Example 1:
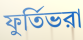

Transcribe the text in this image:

ফুর্তিভরা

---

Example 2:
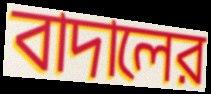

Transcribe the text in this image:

বাদালের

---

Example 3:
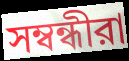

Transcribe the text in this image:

সম্বন্ধীরা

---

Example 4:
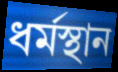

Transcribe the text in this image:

ধর্মস্থান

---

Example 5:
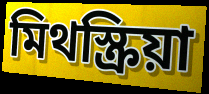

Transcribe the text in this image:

মিথস্ক্রিয়া